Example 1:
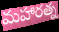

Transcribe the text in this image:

మహారత్న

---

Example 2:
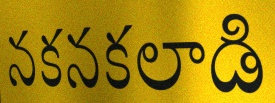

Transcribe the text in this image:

నకనకలాడి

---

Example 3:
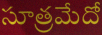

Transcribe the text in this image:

సూత్రమేదో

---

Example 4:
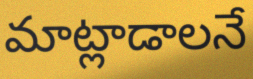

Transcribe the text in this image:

మాట్లాడాలనే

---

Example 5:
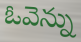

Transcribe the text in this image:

ఓవెన్ను